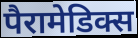
पैरामेडिक्स